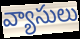
వ్యాసులు